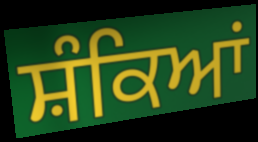
ਸ਼ੰਕਿਆਂ